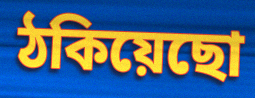
ঠকিয়েছো